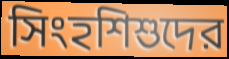
সিংহশিশুদের